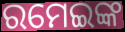
ରମେଇଙ୍କ